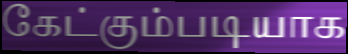
கேட்கும்படியாக